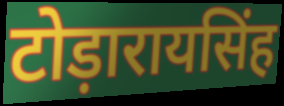
टोड़ारायसिंह